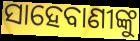
ସାହେବାଣୀଙ୍କୁ